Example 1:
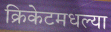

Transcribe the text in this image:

क्रिकेटमधल्या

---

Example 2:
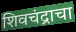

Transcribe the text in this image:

शिवचंद्राचा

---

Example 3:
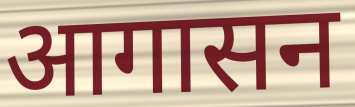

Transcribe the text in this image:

आगासन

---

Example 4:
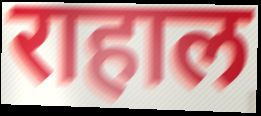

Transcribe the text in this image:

राहाल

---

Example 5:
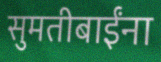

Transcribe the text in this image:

सुमतीबाईंना